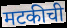
मटकीची